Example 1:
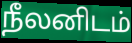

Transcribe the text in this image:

நீலனிடம்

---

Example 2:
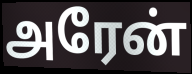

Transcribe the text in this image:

அரேன்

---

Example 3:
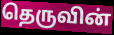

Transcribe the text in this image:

தெருவின்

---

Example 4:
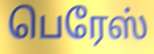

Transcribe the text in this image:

பெரேஸ்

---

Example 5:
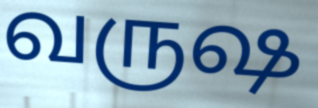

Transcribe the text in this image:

வருஷ